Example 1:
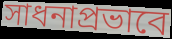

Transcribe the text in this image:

সাধনাপ্রভাবে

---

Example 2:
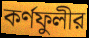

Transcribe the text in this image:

কর্ণফুলীর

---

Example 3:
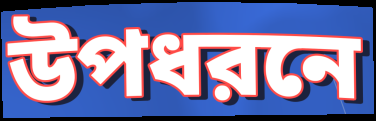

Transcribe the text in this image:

উপধরনে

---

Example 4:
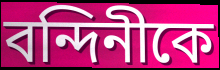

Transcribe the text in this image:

বন্দিনীকে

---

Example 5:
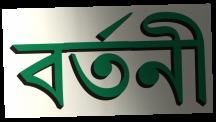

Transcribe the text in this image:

বর্তনী